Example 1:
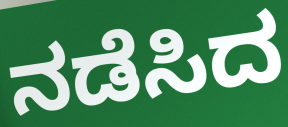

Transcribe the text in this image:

ನಡೆಸಿದ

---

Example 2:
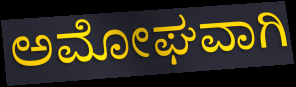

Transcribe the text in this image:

ಅಮೋಘವಾಗಿ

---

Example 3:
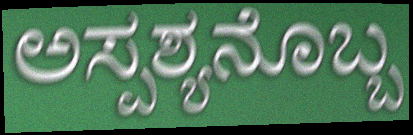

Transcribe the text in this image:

ಅಸ್ಪಶ್ಯನೊಬ್ಬ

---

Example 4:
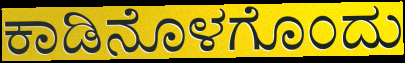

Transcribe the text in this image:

ಕಾಡಿನೊಳಗೊಂದು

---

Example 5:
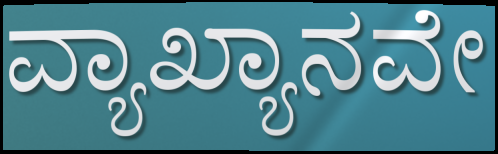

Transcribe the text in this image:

ವ್ಯಾಖ್ಯಾನವೇ